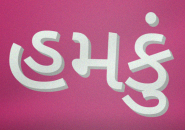
હમકું